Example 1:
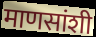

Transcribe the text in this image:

माणसांशी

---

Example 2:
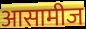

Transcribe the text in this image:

आसामीज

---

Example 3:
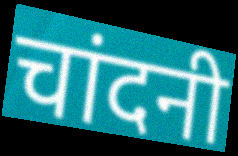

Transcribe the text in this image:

चांदनी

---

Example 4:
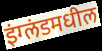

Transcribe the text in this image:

इंग्लंडमधील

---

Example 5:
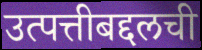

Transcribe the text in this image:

उत्पत्तीबद्दलची